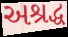
અશ્રદ્ધ